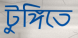
টুঙ্গিতে